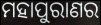
ମହାପୁରାଣର